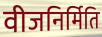
वीजनिर्मिति